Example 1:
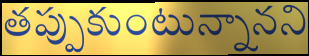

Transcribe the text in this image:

తప్పుకుంటున్నానని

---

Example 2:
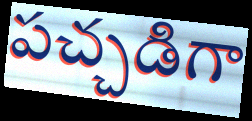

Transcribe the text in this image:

పచ్చడిగా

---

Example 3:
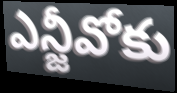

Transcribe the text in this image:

ఎన్జీవోకు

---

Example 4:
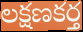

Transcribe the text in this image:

లక్షణకర్త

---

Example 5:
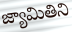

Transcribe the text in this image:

జ్యామితిని